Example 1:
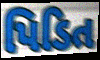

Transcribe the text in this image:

પિડિત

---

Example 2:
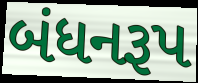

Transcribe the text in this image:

બંધનરૂપ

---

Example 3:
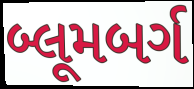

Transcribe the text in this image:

બ્લૂમબર્ગ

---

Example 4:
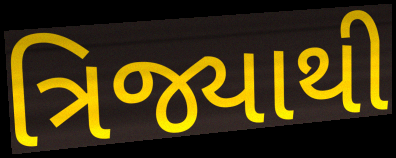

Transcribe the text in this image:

ત્રિજ્યાથી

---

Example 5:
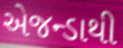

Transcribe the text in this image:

એજન્ડાથી